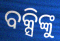
ବକ୍ସିଙ୍କୁ